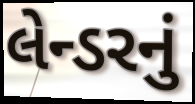
લેન્ડરનું